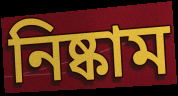
নিষ্কাম